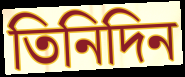
তিনিদিন